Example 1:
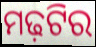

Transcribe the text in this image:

ମଢ଼ଟିର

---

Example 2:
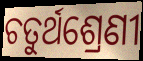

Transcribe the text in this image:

ଚତୁର୍ଥଶ୍ରେଣୀ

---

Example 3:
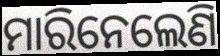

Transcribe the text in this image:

ମାରିନେଲେଣି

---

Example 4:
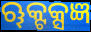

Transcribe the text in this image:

ୠକ୍ଟକ୍ସଜ୍ଞ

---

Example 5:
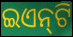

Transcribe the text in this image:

ଇଏନ୍‌ଟି